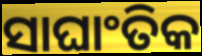
ସାଘାଂତିକ